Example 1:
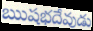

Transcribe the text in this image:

ఋషభదేవుడు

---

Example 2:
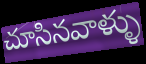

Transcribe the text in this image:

చూసినవాళ్ళు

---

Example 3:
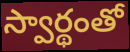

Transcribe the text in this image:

స్వార్థంతో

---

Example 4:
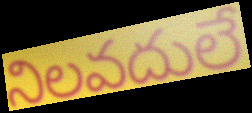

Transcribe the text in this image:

నిలవదులే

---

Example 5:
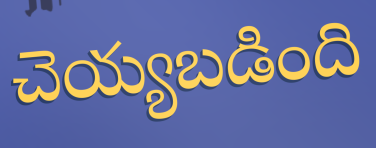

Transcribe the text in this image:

చెయ్యబడింది